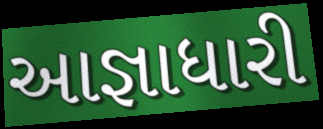
આજ્ઞાધારી